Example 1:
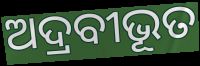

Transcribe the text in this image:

ଅଦ୍ରବୀଭୂତ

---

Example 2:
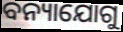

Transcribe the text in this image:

ବନ୍ୟାଯୋଗୁ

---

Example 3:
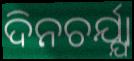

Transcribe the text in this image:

ଦିନଚର୍ଯ୍ଯା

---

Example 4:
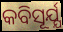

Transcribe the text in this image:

କବିସୂର୍ଯ୍ଯ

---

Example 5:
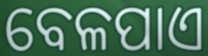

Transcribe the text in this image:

ବେଳପାଏ